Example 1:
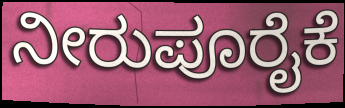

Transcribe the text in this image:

ನೀರುಪೂರೈಕೆ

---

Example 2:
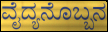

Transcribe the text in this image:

ವೈದ್ಯನೊಬ್ಬನ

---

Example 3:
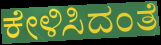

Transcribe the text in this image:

ಕೇಳಿಸಿದಂತೆ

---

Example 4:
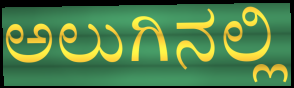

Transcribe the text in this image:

ಅಲುಗಿನಲ್ಲಿ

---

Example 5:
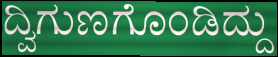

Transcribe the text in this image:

ದ್ವಿಗುಣಗೊಂಡಿದ್ದು